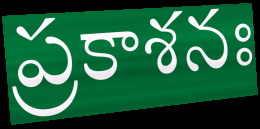
ప్రకాశనః